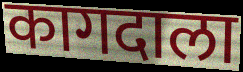
कागदाला